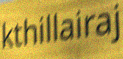
kthillairaj